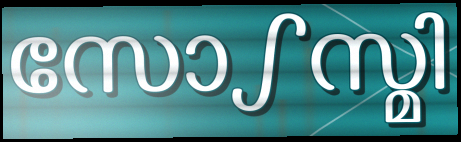
സോഽസ്മി